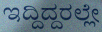
ಇದ್ದಿದ್ದರಲ್ಲೇ